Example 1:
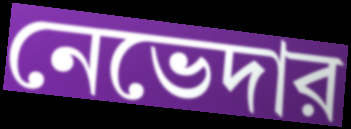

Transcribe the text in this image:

নেভেদার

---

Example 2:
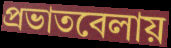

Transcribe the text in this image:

প্রভাতবেলায়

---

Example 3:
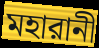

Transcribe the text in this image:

মহারানী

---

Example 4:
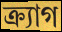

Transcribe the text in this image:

ক্র্যাগ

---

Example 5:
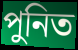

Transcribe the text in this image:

পুনিত